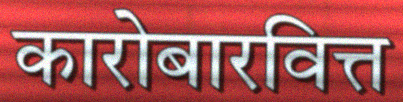
कारोबारवित्त